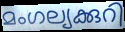
മംഗല്യക്കുറി